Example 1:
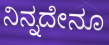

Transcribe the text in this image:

ನಿನ್ನದೇನೂ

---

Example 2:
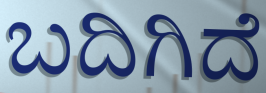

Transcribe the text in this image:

ಬದಿಗಿದೆ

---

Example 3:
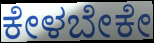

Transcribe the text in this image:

ಕೇಳಬೇಕೇ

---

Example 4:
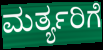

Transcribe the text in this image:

ಮರ್ತ್ಯರಿಗೆ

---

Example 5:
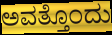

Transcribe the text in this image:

ಅವತ್ತೊಂದು